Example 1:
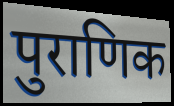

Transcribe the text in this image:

पुराणिक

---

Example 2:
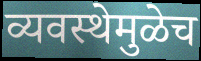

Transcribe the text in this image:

व्यवस्थेमुळेच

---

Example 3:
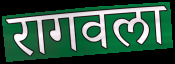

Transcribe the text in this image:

रागवला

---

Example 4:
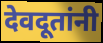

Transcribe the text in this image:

देवदूतांनी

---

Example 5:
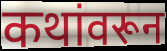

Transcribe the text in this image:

कथांवरून